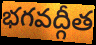
భగవద్గీత